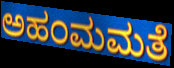
ಅಹಂಮಮತೆ